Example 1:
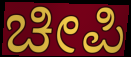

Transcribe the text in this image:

ಚೀಪಿ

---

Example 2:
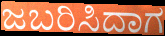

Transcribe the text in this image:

ಜಬರಿಸಿದಾಗ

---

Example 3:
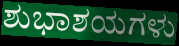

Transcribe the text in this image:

ಶುಭಾಶಯಗಳು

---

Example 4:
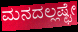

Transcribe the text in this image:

ಮನದಲ್ಲಷ್ಟೇ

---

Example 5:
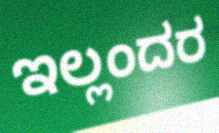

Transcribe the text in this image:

ಇಲ್ಲಂದರ